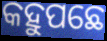
କହୁପଛେ